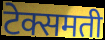
टेक्समती